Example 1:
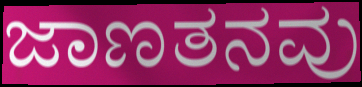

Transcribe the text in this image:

ಜಾಣತನವು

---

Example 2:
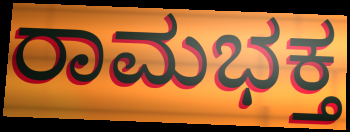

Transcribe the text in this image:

ರಾಮಭಕ್ತ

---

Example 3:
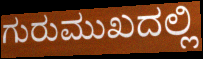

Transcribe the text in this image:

ಗುರುಮುಖದಲ್ಲಿ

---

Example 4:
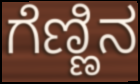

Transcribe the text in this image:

ಗೆಣ್ಣಿನ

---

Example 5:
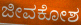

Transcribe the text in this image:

ಜೀವಕೋಶ